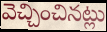
వెచ్చించినట్లు